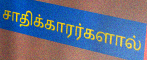
சாதிக்காரர்களால்